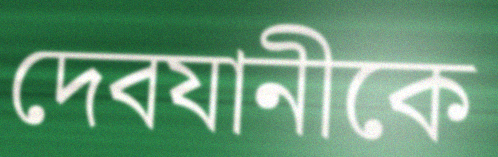
দেবযানীকে